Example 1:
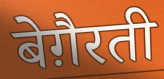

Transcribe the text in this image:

बेग़ैरती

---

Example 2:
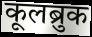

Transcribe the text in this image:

कूलब्रुक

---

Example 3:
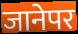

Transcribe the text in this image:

जानेपर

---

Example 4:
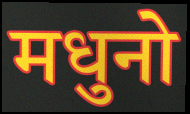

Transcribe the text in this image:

मधुनो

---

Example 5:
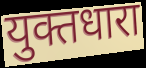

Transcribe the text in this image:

युक्तधारा